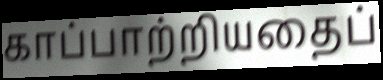
காப்பாற்றியதைப்